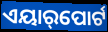
ଏୟାର୍‌ପୋର୍ଟ